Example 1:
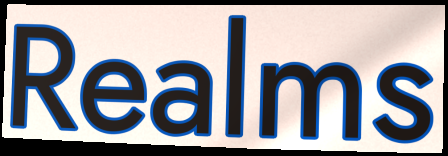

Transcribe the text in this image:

Realms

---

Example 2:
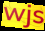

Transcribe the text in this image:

wjs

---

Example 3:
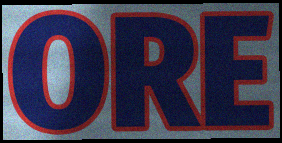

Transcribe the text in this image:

ORE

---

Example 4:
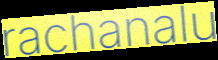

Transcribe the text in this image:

rachanalu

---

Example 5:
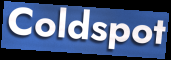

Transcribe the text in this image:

Coldspot